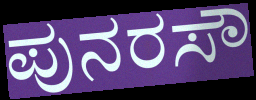
ಪುನರಸೌ